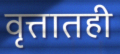
वृत्तातही